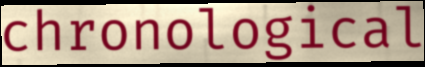
chronological